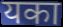
यका